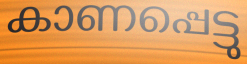
കാണപ്പെട്ടു